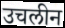
उचलीन